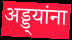
अड्ड्यांना